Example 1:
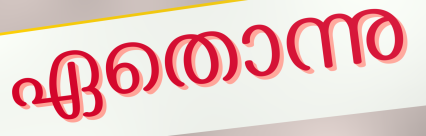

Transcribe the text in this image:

ഏതൊന്നു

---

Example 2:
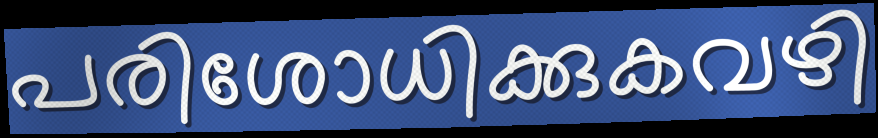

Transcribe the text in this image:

പരിശോധിക്കുകവഴി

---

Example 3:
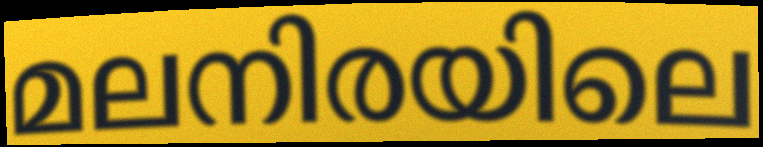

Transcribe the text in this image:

മലനിരയിലെ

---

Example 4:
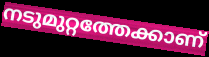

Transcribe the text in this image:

നടുമുറ്റത്തേക്കാണ്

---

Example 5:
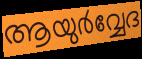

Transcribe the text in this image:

ആയുർവ്വേദ